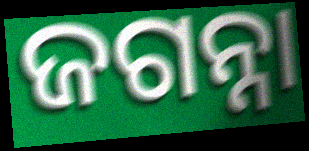
ଜଗନ୍ନା